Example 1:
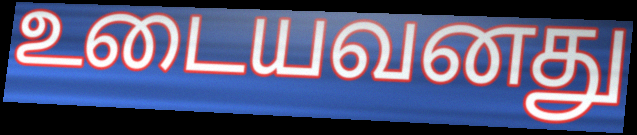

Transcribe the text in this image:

உடையவனது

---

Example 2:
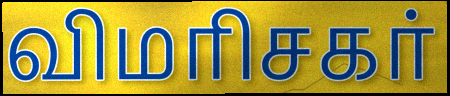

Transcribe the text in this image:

விமரிசகர்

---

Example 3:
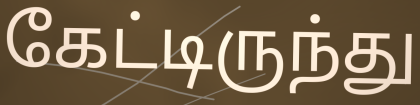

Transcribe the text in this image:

கேட்டிருந்து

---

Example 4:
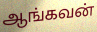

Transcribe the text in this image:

ஆங்கவன்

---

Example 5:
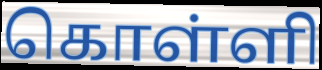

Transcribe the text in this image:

கொள்ளி